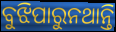
ବୁଝିପାରୁନଥାନ୍ତି